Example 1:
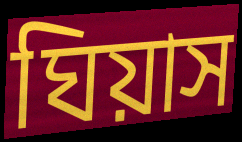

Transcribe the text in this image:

ঘিয়াস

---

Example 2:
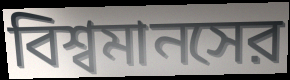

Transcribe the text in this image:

বিশ্বমানসের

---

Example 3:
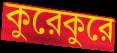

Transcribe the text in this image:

কুরেকুরে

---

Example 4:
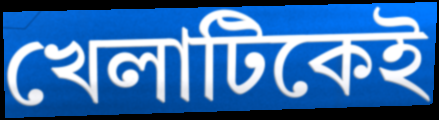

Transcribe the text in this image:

খেলাটিকেই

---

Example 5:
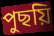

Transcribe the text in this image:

পুছয়ি